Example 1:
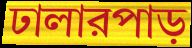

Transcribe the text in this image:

ঢালারপাড়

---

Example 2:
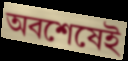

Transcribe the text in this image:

অবশেষেই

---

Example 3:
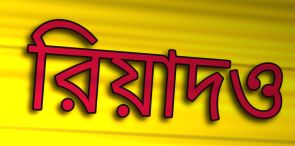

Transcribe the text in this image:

রিয়াদও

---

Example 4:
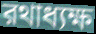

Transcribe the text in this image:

রথাধ্যক্ষ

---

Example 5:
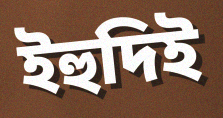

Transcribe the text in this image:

ইহুদিই